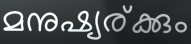
മനുഷ്യര്ക്കും